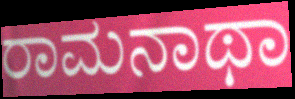
ರಾಮನಾಥಾ